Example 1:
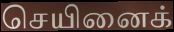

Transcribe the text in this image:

செயினைக்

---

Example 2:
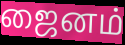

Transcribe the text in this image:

ஜைனம்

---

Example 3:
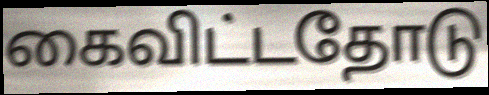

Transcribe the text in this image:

கைவிட்டதோடு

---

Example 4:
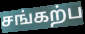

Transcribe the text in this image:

சங்கற்ப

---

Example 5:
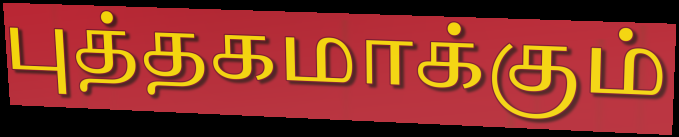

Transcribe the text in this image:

புத்தகமாக்கும்